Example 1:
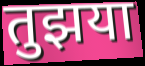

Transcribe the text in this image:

तुझया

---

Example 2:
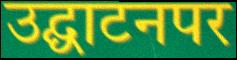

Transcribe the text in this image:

उद्घाटनपर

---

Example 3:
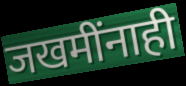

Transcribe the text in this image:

जखमींनाही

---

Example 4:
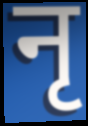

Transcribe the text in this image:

नृ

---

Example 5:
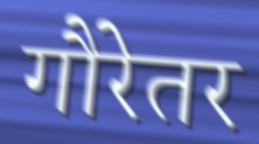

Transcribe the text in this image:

गौरेतर